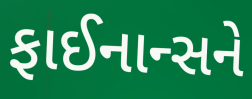
ફાઈનાન્સને